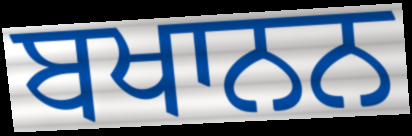
ਬਖਾਨਨ